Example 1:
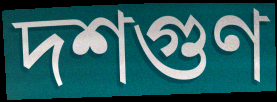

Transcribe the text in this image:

দশগুণ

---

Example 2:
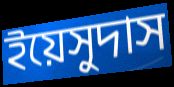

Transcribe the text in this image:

ইয়েসুদাস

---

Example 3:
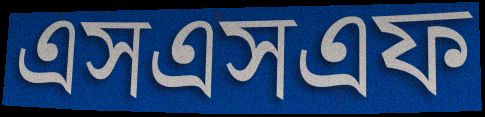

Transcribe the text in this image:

এসএসএফ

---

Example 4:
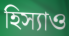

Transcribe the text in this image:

হিস্যাও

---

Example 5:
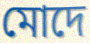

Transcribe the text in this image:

মোদে